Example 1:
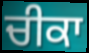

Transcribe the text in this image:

ਚੀਕਾ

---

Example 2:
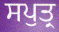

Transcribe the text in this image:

ਸਪੁਤ੍ਰ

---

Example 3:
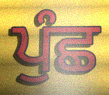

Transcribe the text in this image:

ਪੁੰਛ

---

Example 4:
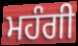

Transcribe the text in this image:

ਮਹੰਗੀ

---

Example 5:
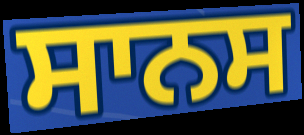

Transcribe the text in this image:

ਸਾਨਸ